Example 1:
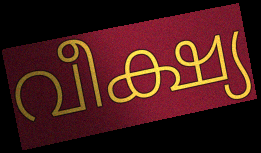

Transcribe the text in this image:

വീക്ഷ്യ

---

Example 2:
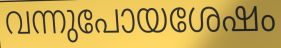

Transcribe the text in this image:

വന്നുപോയശേഷം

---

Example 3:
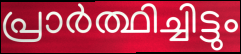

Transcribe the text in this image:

പ്രാർത്ഥിച്ചിട്ടും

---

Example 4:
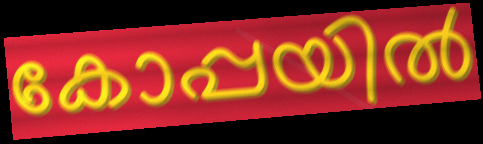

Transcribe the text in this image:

കോപ്പയിൽ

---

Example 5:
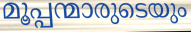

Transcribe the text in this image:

മൂപ്പന്മാരുടെയും